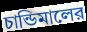
চান্ডিমালের